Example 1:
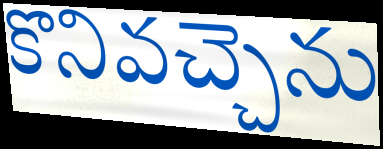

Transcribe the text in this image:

కొనివచ్చెను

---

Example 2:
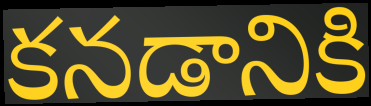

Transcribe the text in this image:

కనడానికి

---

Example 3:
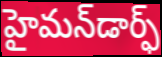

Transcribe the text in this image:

హైమన్‌డార్ఫ్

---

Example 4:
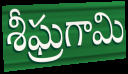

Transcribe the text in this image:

శీఘ్రగామి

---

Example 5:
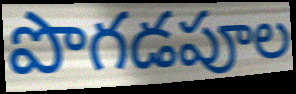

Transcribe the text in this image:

పొగడపూల